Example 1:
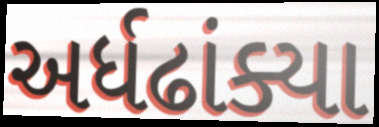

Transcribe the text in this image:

અર્ધઢાંક્યા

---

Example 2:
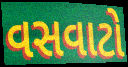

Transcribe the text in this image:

વસવાટો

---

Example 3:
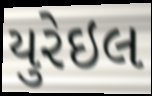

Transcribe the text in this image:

યુરેઇલ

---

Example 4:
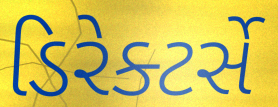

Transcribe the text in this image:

ડિરેક્ટર્સે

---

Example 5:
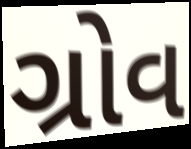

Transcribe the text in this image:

ગ્રોવ